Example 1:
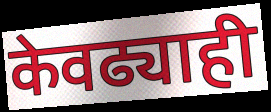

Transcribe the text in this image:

केवढ्याही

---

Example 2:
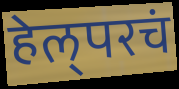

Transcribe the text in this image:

हेल्परचं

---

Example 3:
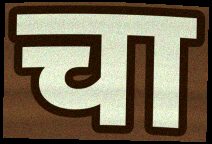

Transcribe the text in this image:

चा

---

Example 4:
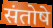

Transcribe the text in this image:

संतोषे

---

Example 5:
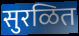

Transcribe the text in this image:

सुरळित